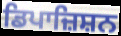
ਡਿਪਾਜ਼ਿਸ਼ਨ